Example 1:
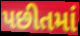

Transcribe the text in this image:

પછીતમાં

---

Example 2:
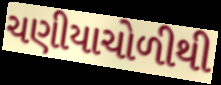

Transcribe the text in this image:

ચણીયાચોળીથી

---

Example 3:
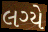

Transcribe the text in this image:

લગ્યે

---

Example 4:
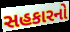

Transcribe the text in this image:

સહકારનો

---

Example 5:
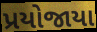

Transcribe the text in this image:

પ્રયોજાયા